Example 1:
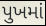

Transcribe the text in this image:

પુખમાં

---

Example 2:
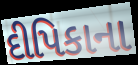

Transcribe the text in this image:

દીપિકાના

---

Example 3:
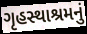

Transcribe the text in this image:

ગૃહસ્થાશ્રમનું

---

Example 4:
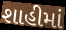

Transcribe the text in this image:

શાહીમાં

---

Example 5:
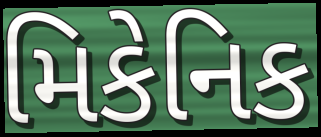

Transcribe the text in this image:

મિકેનિક